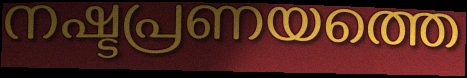
നഷ്ടപ്രണയത്തെ